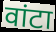
वांटा